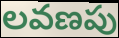
లవణపు